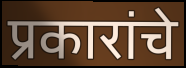
प्रकारांचे